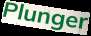
Plunger